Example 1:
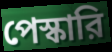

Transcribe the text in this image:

পেস্কারি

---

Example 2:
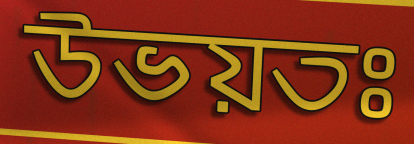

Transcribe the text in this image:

উভয়তঃ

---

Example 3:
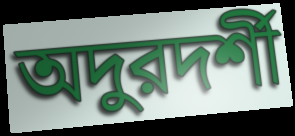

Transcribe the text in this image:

অদুরদর্শী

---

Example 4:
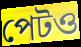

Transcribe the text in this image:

পেটও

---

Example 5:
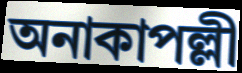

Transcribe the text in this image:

অনাকাপল্লী